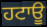
ਹਟਾਊ